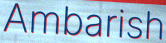
Ambarish